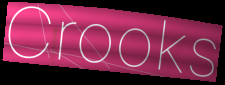
Crooks